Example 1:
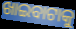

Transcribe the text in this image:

ଖାଇବାଟାକୁ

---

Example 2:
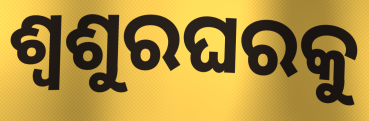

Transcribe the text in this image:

ଶ୍ୱଶୁରଘରକୁ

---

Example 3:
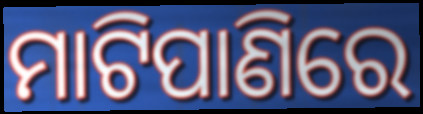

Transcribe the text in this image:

ମାଟିପାଣିରେ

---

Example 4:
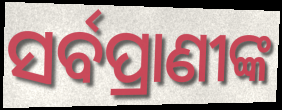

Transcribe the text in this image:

ସର୍ବପ୍ରାଣୀଙ୍କ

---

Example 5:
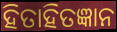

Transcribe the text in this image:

ହିତାହିତଜ୍ଞାନ